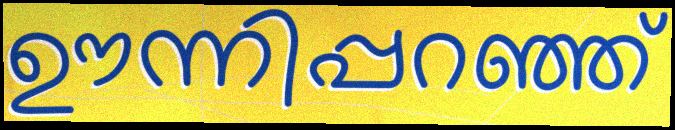
ഊന്നിപ്പറഞ്ഞ്